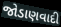
જોડાણવાદી